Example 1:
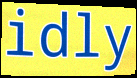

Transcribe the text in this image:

idly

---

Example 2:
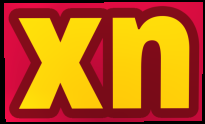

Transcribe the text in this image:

xn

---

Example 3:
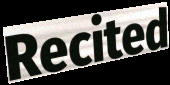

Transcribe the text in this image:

Recited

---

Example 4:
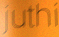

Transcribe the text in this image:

juthi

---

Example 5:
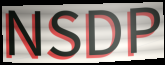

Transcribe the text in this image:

NSDP